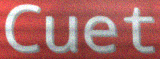
Cuet